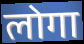
लोगा